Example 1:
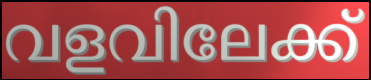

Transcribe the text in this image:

വളവിലേക്ക്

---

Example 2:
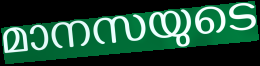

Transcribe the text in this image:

മാനസയുടെ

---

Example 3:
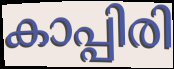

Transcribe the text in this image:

കാപ്പിരി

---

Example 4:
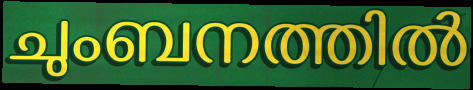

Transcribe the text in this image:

ചുംബനത്തിൽ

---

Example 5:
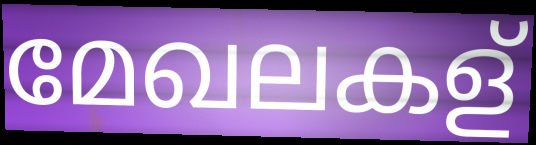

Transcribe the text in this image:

മേഖലകള്